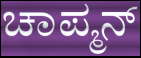
ಚಾಪ್ಮನ್